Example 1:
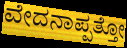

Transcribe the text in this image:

ವೇದನಾಪ್ಪತ್ತೋ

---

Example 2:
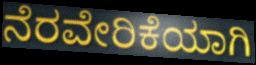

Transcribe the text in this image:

ನೆರವೇರಿಕೆಯಾಗಿ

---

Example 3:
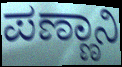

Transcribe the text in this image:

ಪಣ್ಣಾನಿ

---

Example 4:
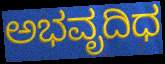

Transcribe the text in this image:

ಅಭವೃದಿಧ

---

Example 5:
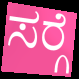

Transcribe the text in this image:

ಸರ್‍ಗೆ